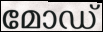
മോഡ്